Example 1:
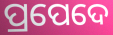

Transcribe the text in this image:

ପ୍ରପେଦେ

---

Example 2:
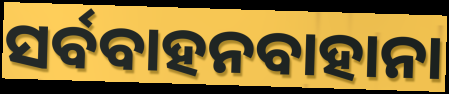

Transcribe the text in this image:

ସର୍ବବାହନବାହାନା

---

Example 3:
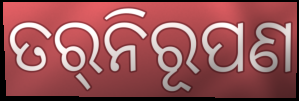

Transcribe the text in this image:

ତର୍‌ନିରୂପଣ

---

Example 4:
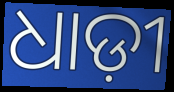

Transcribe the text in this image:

ଧାଡ଼ୀ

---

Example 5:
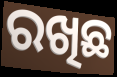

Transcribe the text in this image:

ରଖିଛ